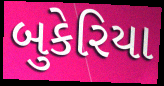
બુકેરિયા